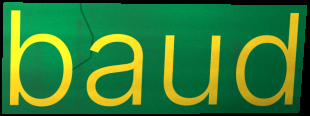
baud